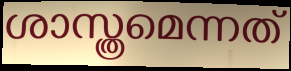
ശാസ്ത്രമെന്നത്